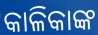
କାଳିକାଙ୍କ